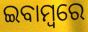
ଇବାମ୍ବରେ